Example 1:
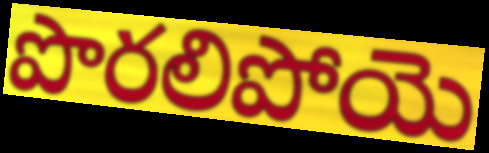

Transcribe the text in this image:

పొరలిపోయె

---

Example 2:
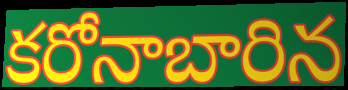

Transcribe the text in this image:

కరోనాబారిన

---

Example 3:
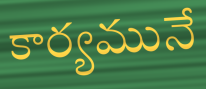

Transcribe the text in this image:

కార్యమునే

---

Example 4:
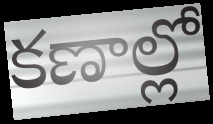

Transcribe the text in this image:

కణాల్లో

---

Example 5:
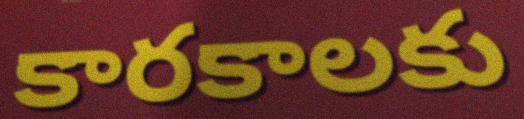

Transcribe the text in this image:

కారకాలకు